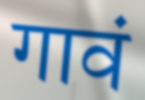
गावं